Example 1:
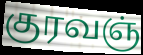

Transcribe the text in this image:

குரவஞ்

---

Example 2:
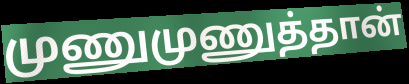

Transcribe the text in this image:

முணுமுணுத்தான்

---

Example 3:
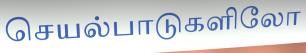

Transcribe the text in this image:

செயல்பாடுகளிலோ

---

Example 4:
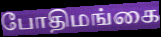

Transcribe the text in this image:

போதிமங்கை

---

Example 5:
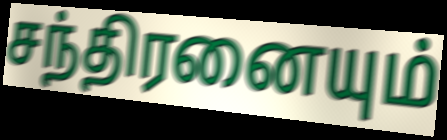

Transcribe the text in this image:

சந்திரனையும்